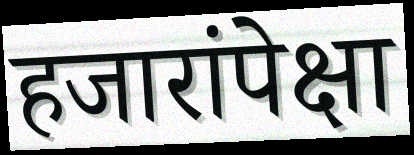
हजारांपेक्षा